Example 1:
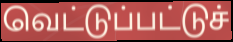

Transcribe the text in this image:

வெட்டுப்பட்டுச்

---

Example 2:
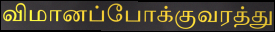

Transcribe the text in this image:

விமானப்போக்குவரத்து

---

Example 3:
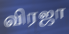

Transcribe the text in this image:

விரஜா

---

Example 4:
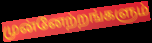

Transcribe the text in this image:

முன்னேற்றங்களும்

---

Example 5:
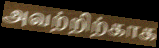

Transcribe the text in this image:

அவற்றிற்காக